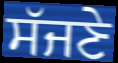
ਸੱਜਣੇ